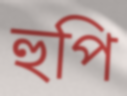
হুপি